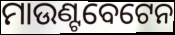
ମାଉଣ୍ଟବେଟେନ